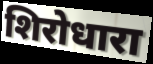
शिरोधारा